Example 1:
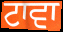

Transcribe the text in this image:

ਟਾਵਾ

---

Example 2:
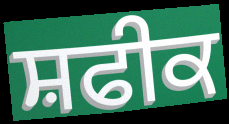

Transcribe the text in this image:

ਸ਼ਫੀਕ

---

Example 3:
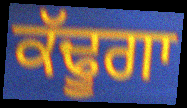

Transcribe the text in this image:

ਕੱਢੂਗਾ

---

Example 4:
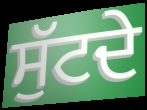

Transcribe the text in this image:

ਸੁੱਟਦੇ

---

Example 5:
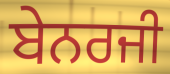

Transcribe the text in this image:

ਬੇਨਰਜੀ